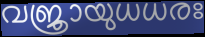
വജ്രായുധധരഃ